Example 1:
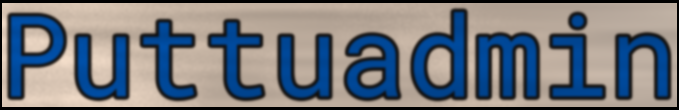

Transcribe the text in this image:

Puttuadmin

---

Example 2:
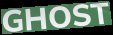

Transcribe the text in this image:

GHOST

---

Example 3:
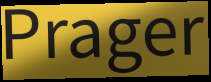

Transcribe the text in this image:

Prager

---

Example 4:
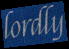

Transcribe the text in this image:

lordly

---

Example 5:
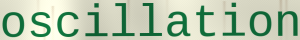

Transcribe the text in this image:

oscillation